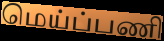
மெய்ப்பணி